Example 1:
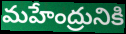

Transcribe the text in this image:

మహేంద్రునికి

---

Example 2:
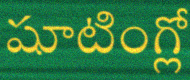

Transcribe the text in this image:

షూటింగ్లో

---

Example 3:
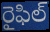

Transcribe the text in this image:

రైఫిల్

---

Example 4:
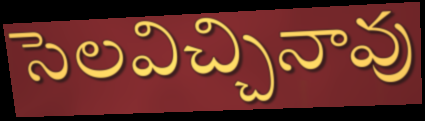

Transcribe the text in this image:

సెలవిచ్చినావు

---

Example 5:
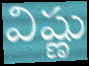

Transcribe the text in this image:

విష్ణు